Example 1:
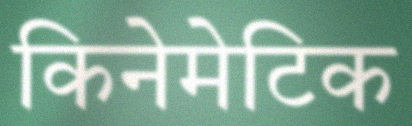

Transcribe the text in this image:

किनेमेटिक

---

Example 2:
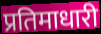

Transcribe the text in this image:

प्रतिमाधारी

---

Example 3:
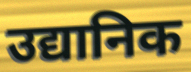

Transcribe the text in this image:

उद्यानिक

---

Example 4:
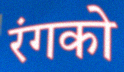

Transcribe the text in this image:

रंगको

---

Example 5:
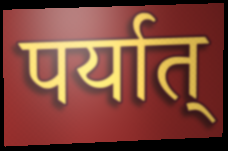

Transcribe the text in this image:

पर्यात्